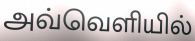
அவ்வெளியில்